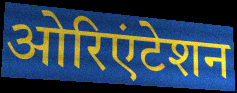
ओरिएंटेशन